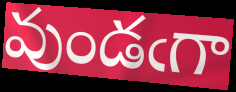
వుండఁగా